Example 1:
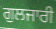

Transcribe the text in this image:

ਗੁਲਜਾਰੀ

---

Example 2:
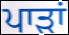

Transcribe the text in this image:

ਪਾੜਾਂ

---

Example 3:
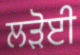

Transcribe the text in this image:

ਲੜੋਈ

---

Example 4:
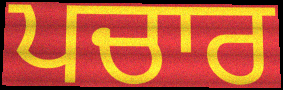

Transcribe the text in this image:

ਪਚਾਰ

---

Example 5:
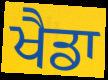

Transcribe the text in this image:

ਖੈਡਾ